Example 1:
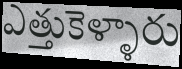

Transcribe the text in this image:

ఎత్తుకెళ్ళారు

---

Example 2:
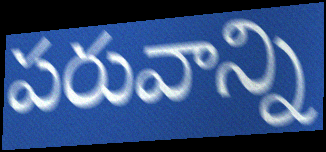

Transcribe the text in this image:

పరువాన్ని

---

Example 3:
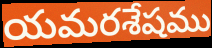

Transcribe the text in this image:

యమరశేషము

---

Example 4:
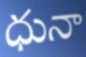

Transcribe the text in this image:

ధునా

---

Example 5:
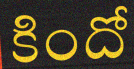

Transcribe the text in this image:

కిందో